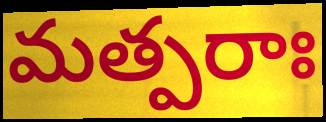
మత్పరాః